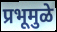
प्रभूमुळे